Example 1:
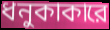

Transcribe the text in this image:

ধনুকাকারে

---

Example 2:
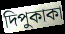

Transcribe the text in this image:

দিপুকাকা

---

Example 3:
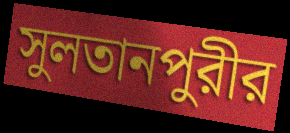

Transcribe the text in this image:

সুলতানপুরীর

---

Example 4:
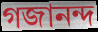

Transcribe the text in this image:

গজানন্দ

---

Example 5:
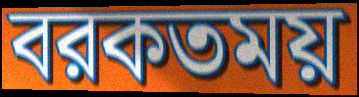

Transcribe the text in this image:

বরকতময়